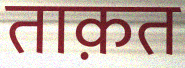
ताक़त